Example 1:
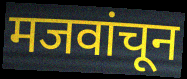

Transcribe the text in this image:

मजवांचून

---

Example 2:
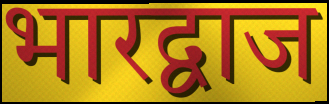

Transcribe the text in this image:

भारद्वाज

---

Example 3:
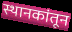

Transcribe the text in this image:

स्थानकांतून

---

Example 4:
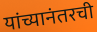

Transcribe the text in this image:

यांच्यानंतरची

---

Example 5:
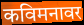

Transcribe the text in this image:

कविमनावर